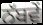
ਨੱਬਵੇਂ